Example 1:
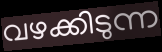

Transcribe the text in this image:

വഴക്കിടുന്ന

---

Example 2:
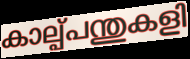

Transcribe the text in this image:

കാല്പ്പന്തുകളി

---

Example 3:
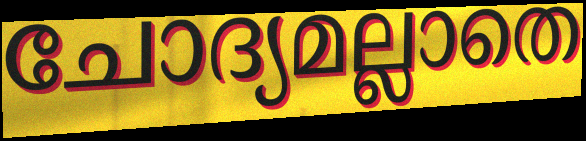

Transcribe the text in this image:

ചോദ്യമല്ലാതെ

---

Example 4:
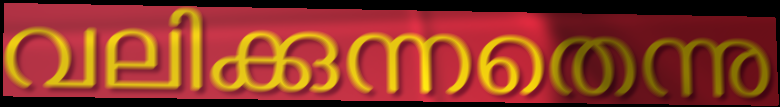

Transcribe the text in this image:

വലിക്കുന്നതെന്നു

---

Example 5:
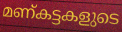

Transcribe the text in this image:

മണ്കട്ടകളുടെ